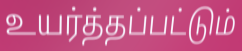
உயர்த்தப்பட்டும்